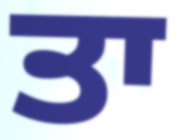
ਤਾ